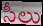
సీలు